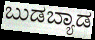
ಬುಡಬ್ಯಾಡ